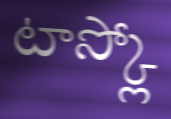
టాస్క్లో